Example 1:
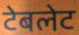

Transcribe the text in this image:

टेबलेट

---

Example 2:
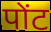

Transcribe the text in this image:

पोंट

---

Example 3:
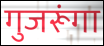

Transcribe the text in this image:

गुजरूंगा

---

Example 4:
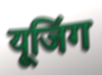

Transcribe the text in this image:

यूजिंग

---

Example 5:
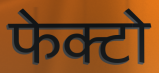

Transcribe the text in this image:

फेक्टो